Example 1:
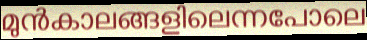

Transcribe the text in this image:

മുൻകാലങ്ങളിലെന്നപോലെ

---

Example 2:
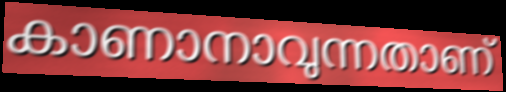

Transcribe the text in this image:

കാണാനാവുന്നതാണ്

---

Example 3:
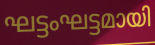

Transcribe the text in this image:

ഘട്ടംഘട്ടമായി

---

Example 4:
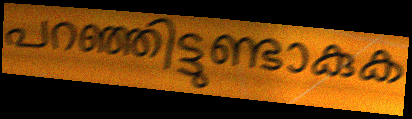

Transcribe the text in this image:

പറഞ്ഞിട്ടുണ്ടാകുക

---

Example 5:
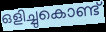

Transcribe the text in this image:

ഒളിച്ചുകൊണ്ട്